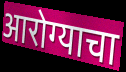
आरोग्याचा